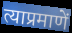
त्याप्रमाणें